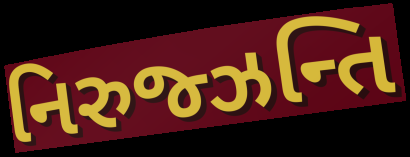
નિરુજ્ઝન્તિ